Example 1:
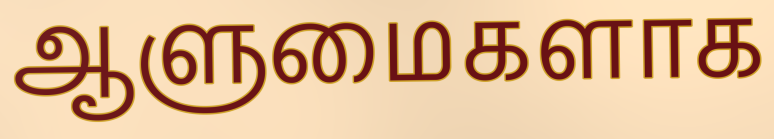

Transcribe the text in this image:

ஆளுமைகளாக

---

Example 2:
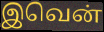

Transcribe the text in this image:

இவென்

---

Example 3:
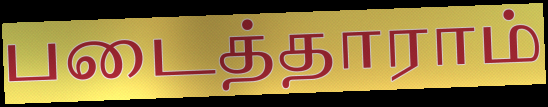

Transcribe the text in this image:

படைத்தாராம்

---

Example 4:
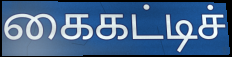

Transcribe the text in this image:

கைகட்டிச்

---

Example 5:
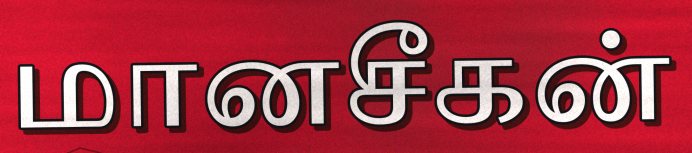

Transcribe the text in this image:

மானசீகன்